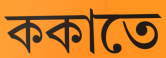
ককাতে